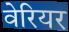
वेरियर